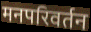
मनपरिवर्तन